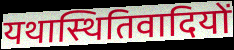
यथास्थितिवादियों